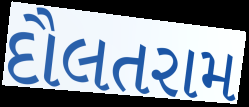
દૌલતરામ